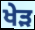
ਖੇੜ